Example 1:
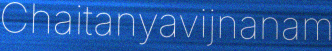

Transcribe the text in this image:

Chaitanyavijnanam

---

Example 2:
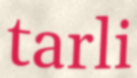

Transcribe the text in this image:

tarli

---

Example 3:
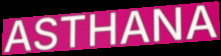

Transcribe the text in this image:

ASTHANA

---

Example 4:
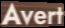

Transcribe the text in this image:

Avert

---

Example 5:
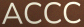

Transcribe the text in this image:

ACCC